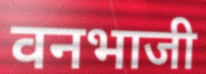
वनभाजी